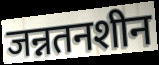
जन्नतनशीन